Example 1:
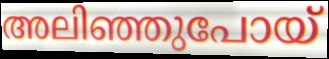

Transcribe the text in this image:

അലിഞ്ഞുപോയ്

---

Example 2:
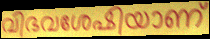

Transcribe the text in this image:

വിഭവശേഷിയാണ്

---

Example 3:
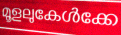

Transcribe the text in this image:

മൂളലുകേൾക്കേ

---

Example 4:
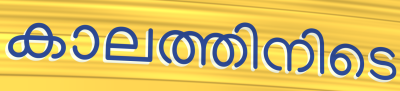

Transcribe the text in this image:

കാലത്തിനിടെ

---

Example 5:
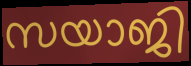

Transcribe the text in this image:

സയാജി